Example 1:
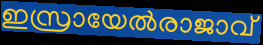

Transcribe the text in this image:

ഇസ്രായേൽരാജാവ്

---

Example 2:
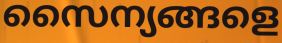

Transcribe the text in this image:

സൈന്യങ്ങളെ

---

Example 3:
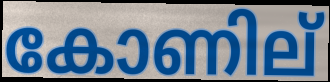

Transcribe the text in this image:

കോണില്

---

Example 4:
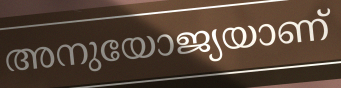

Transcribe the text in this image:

അനുയോജ്യയാണ്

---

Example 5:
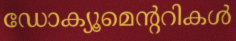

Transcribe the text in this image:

ഡോക്യൂമെന്ററികൾ